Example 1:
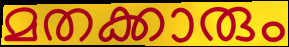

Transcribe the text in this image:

മതക്കാരും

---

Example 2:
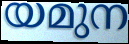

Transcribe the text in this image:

യമുന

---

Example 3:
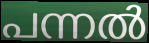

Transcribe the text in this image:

പന്നൽ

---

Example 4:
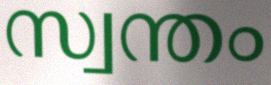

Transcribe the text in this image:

സ്വന്തം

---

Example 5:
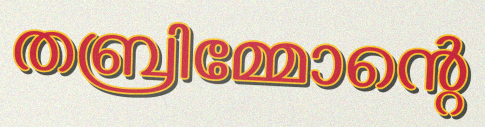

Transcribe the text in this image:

തബ്രിമ്മോന്റെ